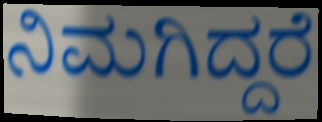
ನಿಮಗಿದ್ದರೆ